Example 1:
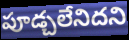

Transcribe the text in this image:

పూడ్చలేనిదని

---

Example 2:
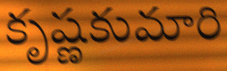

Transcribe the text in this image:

కృష్ణకుమారి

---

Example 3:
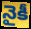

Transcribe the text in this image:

నైకీ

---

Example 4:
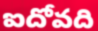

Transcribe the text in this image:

ఐదోవది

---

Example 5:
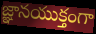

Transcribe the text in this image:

జ్ఞానయుక్తంగా